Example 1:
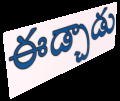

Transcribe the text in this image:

ఈడ్చాడు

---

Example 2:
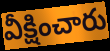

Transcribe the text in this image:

వీక్షించారు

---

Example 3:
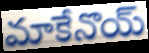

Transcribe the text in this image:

మాకేనొయ్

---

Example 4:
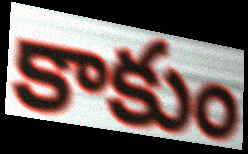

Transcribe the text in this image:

కాకుం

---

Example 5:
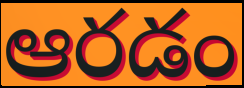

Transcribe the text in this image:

ఆరడం